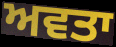
ਅਵਤਾ